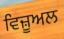
ਵਿਜ਼ੂਅਲ